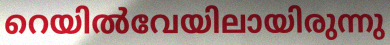
റെയിൽവേയിലായിരുന്നു